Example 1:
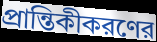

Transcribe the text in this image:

প্রান্তিকীকরণের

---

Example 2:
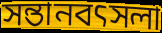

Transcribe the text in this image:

সন্তানবৎসলা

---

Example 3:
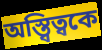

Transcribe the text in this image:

অস্ত্বিত্বকে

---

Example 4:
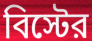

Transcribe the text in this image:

বিস্টের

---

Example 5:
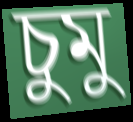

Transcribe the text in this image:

চুমু